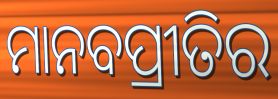
ମାନବପ୍ରୀତିର